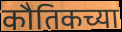
कौतिकच्या